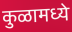
कुळामध्ये